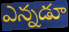
ఎన్నడూ